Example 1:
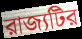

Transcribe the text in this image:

রাজ্যটির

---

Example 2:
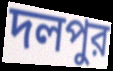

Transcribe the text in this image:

দলপুর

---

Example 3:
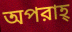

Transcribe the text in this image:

অপরাহ্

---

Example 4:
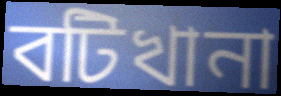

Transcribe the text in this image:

বটিখানা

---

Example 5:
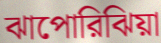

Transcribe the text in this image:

ঝাপোরিঝিয়া